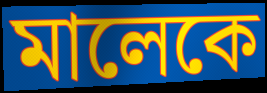
মালেকে